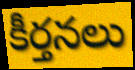
కీర్తనలు